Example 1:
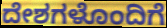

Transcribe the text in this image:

ದೇಶಗಳೊಂದಿಗೆ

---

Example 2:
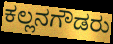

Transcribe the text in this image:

ಕಲ್ಲನಗೌಡರು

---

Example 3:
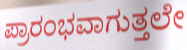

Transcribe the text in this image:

ಪ್ರಾರಂಭವಾಗುತ್ತಲೇ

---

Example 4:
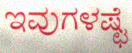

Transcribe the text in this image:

ಇವುಗಳಷ್ಟೆ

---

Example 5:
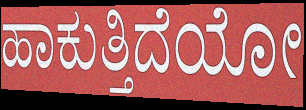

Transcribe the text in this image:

ಹಾಕುತ್ತಿದೆಯೋ